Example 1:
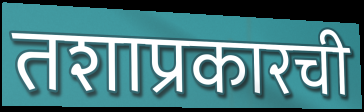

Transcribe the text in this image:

तशाप्रकारची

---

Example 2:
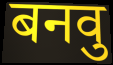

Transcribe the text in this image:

बनवु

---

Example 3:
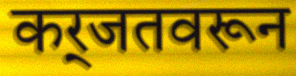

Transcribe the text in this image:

कर्जतवरून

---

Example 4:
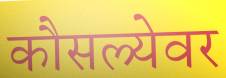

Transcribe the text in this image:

कौसल्येवर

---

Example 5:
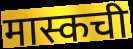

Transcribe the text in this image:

मास्कची